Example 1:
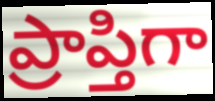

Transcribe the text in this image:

ప్రాప్తిగా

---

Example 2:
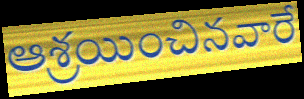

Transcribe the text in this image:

ఆశ్రయించినవారే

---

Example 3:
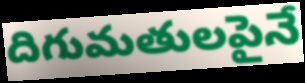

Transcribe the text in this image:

దిగుమతులపైనే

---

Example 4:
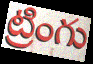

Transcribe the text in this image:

ట్రింగు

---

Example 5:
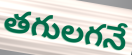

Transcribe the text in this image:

తగులగనే